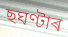
ছঘণ্টাৰ